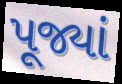
પૂજ્યાં